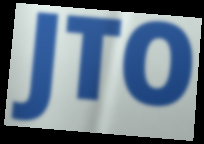
JTO